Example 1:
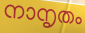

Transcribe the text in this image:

നാനൃതം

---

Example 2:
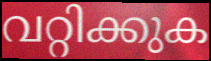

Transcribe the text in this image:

വറ്റിക്കുക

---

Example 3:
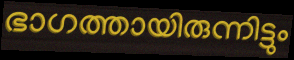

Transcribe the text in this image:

ഭാഗത്തായിരുന്നിട്ടും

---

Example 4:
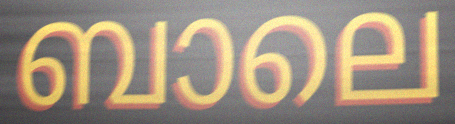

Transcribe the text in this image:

ബാലെ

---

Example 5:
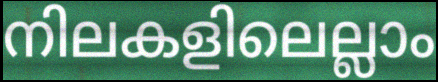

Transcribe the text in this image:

നിലകളിലെല്ലാം